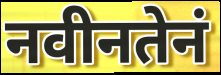
नवीनतेनं